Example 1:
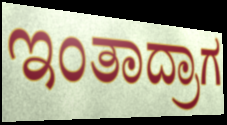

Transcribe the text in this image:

ಇಂತಾದ್ರಾಗ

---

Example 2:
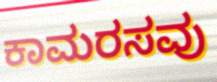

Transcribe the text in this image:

ಕಾಮರಸವು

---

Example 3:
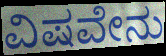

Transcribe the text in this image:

ವಿಷವೇನು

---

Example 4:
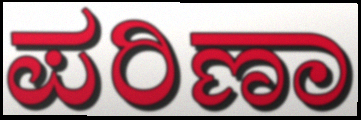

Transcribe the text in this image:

ಪರಿಣಾ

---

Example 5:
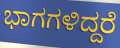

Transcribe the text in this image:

ಭಾಗಗಳಿದ್ದರೆ